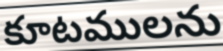
కూటములను